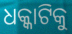
ଧକ୍କାଟିକୁ